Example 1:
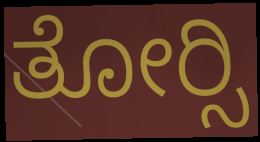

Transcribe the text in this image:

ತೋರ್‍ಸಿ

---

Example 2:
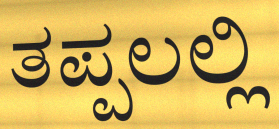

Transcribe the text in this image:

ತಪ್ಪಲಲ್ಲಿ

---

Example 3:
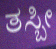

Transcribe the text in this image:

ತಸ್ಬೀ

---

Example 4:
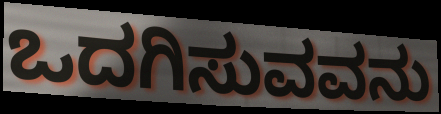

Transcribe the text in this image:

ಒದಗಿಸುವವನು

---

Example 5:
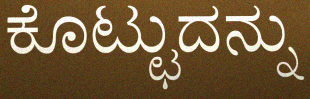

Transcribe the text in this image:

ಕೊಟ್ಟುದನ್ನು